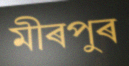
মীৰপুৰ